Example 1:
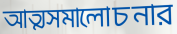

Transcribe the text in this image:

আত্মসমালোচনার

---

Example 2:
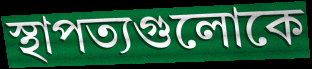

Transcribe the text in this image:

স্থাপত্যগুলোকে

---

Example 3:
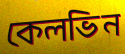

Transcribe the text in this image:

কেলভিন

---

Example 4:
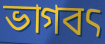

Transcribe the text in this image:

ভাগবৎ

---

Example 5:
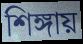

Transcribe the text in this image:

শিঙ্গায়